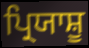
ਪ੍ਰਿਯਾਸ਼ੂ